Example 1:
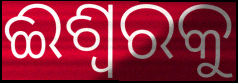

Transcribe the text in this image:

ଈଶ୍ୱରକୁ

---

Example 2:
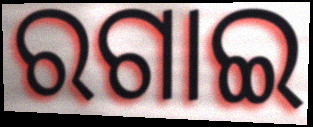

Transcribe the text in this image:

ରଗାଇ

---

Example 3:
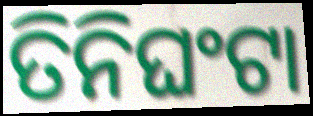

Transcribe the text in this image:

ତିନିଘଂଟା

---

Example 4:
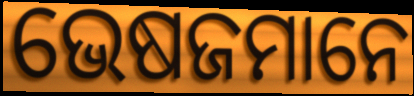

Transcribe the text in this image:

ଭେଷଜମାନେ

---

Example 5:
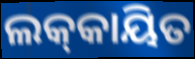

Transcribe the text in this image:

ଲକ୍‌କାୟିତ